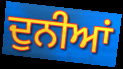
ਦੁਨੀਆਂ